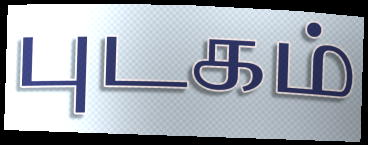
புடகம்